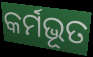
କର୍ମଭୂତ